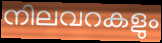
നിലവറകളും